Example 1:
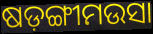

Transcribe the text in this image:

ଷଡ଼ଙ୍ଗୀମଉସା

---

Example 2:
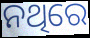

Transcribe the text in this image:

ନଥିରେ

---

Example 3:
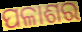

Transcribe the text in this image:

ପଳାଶର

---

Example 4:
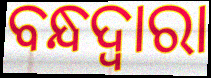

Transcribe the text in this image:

ବନ୍ଧଦ୍ବାରା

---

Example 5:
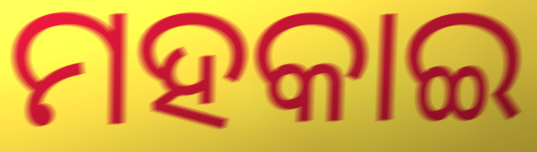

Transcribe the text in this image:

ମହକାଇ